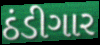
ઠંડીગાર